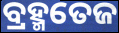
ବ୍ରହ୍ମତେଜ